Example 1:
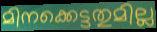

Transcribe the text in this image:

മിനക്കെട്ടതുമില്ല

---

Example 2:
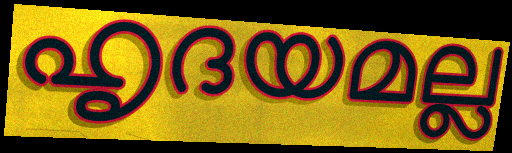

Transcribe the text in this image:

ഹൃദയമല്ല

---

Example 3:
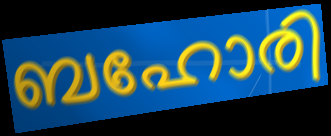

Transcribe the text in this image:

ബഹോരി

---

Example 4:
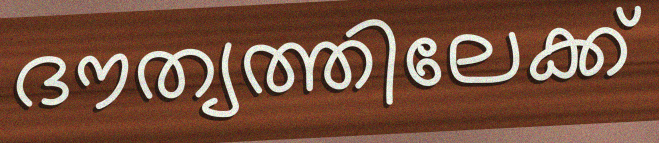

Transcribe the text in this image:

ദൗത്യത്തിലേക്ക്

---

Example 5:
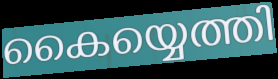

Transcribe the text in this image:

കൈയ്യെത്തി